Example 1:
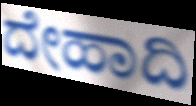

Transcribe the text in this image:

ದೇಹಾದಿ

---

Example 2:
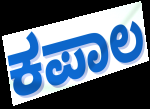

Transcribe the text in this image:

ಕಪಾಲ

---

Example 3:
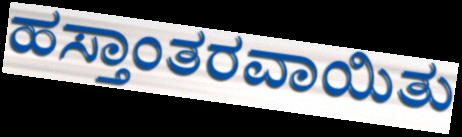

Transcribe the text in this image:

ಹಸ್ತಾಂತರವಾಯಿತು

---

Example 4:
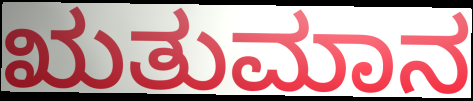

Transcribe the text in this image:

ಋತುಮಾನ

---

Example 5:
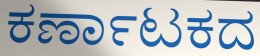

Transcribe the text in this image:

ಕರ್ಣಾಟಕದ